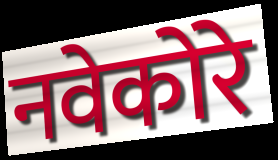
नवेकोरे